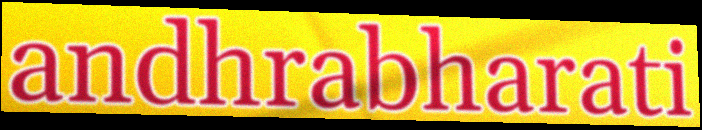
andhrabharati